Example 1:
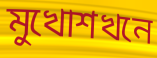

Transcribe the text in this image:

মুখোশখনে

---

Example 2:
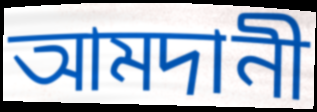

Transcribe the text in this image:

আমদানী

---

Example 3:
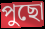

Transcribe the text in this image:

পুছো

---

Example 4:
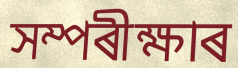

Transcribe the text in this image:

সম্পৰীক্ষাৰ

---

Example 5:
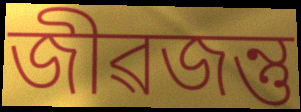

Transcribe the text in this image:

জীৱজন্তু